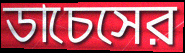
ডাচেসের